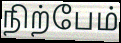
நிற்பேம்